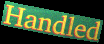
Handled